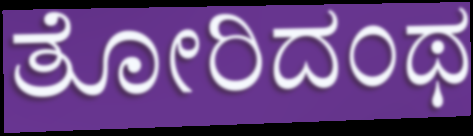
ತೋರಿದಂಥ